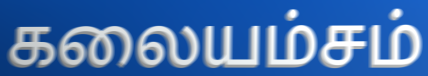
கலையம்சம்